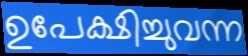
ഉപേക്ഷിച്ചുവന്ന